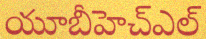
యూబీహెచ్ఎల్